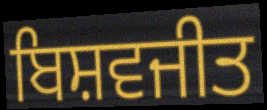
ਬਿਸ਼ਵਜੀਤ